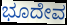
ಭೂದೇವ